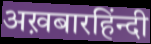
अख़बारहिंन्दी